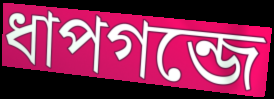
ধাপগন্জে